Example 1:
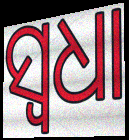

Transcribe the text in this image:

ସ୍ୱଧା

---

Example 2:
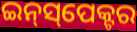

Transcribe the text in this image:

ଇନ୍‍ସ୍‌ପେକ୍ଟର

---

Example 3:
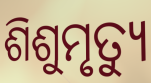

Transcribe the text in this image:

ଶିଶୁମୃତ୍ୟୁ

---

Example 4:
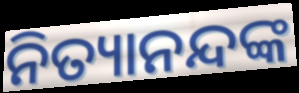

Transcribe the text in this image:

ନିତ୍ୟାନନ୍ଦଙ୍କ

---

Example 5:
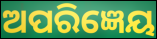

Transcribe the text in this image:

ଅପରିଜ୍ଞେୟ